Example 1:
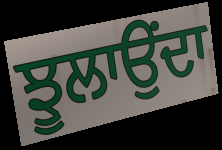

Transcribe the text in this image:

ਝੂਲਾਉਂਦਾ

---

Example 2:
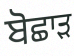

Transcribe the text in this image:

ਬੋਛਾੜ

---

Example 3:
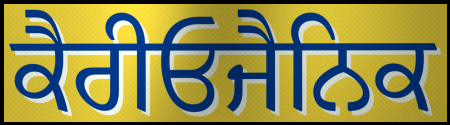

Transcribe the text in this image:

ਕੈਰੀਓਜੈਨਿਕ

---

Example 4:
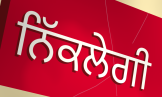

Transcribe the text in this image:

ਨਿੱਕਲੇਗੀ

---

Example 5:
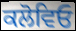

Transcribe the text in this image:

ਕਲੋਵਿਓ